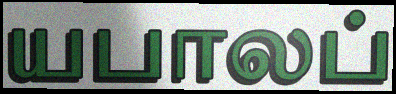
யபாலப்